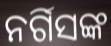
ନର୍ଗିସଙ୍କ